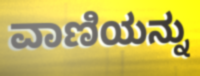
ವಾಣಿಯನ್ನು